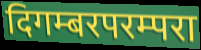
दिगम्बरपरम्परा